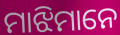
ମାଝିମାନେ